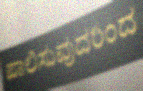
ಪಾಲಿಸುವುದರಿಂದ